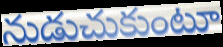
నుడుచుకుంటూ